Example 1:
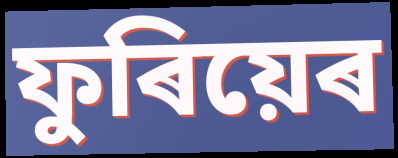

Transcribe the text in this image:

ফুৰিয়েৰ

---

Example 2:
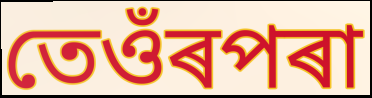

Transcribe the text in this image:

তেওঁৰপৰা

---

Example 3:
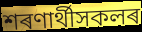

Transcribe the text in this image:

শৰণাৰ্থীসকলৰ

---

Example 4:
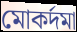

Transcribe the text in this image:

মোকৰ্দমা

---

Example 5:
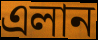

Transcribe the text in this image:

এলান